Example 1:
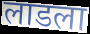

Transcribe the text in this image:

लाडला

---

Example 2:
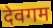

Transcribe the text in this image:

देवगम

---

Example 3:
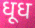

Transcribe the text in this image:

धूध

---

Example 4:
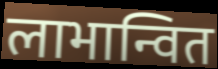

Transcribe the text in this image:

लाभान्वित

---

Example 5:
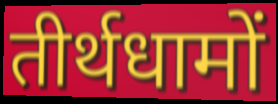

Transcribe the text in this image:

तीर्थधामों